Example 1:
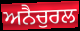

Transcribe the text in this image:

ਅਨੈਚੁਰਲ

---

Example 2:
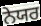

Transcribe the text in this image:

ਨੇਯਰ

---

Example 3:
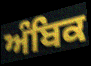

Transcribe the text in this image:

ਅੰਬਿਕ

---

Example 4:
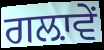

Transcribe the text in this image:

ਗਲ਼ਾਵੇਂ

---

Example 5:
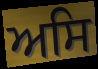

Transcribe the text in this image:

ਅਸਿ